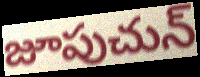
జూపుచున్